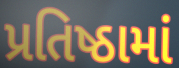
પ્રતિષ્ઠામાં